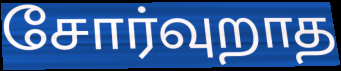
சோர்வுறாத